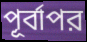
পূর্বাপর